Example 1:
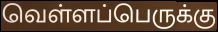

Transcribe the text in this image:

வெள்ளப்பெருக்கு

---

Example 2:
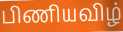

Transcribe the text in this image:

பிணியவிழ்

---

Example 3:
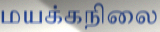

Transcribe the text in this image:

மயக்கநிலை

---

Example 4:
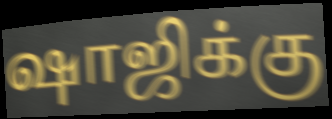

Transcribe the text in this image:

ஷாஜிக்கு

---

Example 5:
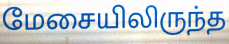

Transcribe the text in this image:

மேசையிலிருந்த